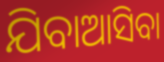
ଯିବାଆସିବା